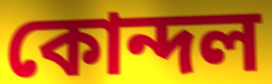
কোন্দল